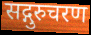
सद्गुरुचरण